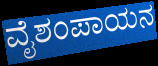
ವೈಶಂಪಾಯನ